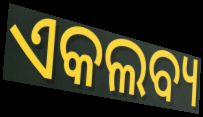
ଏକଲବ୍ୟ